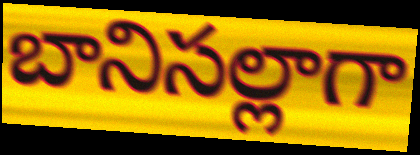
బానిసల్లాగా